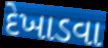
દેખાડવા